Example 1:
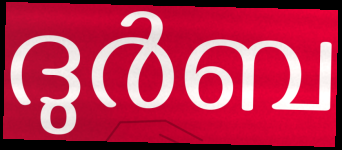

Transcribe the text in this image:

ദുർബ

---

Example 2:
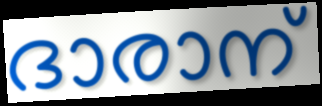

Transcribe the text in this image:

ദാരാന്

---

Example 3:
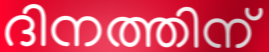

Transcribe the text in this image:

ദിനത്തിന്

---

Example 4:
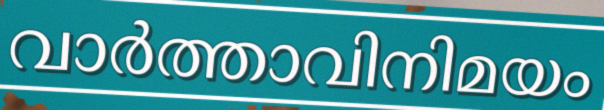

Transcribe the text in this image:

വാർത്താവിനിമയം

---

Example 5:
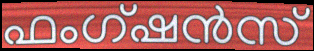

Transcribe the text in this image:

ഫംഗ്ഷൻസ്